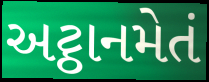
અટ્ઠાનમેતં